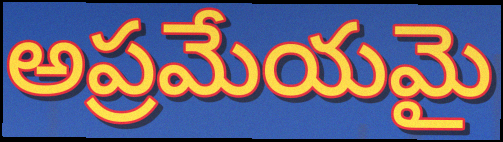
అప్రమేయమై